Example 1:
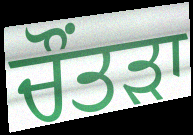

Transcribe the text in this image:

ਚੌਂਤੜਾ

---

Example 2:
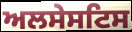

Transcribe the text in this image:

ਅਲਸੇਸਟਿਸ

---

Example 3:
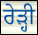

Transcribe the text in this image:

ਰੇੜ੍ਹੀ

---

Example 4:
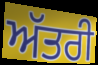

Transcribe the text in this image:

ਅੱਤਰੀ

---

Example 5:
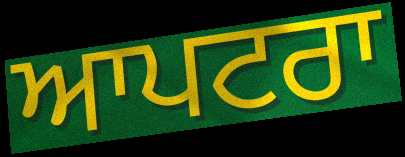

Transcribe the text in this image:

ਆਪਟਰਾ